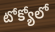
టోక్యోలో